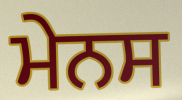
ਮੇਨਸ